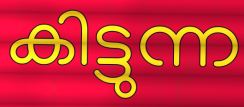
കിട്ടുന്ന